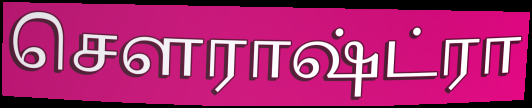
சௌராஷ்ட்ரா